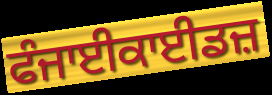
ਫੰਜਾਈਕਾਈਡਜ਼